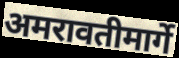
अमरावतीमार्गे